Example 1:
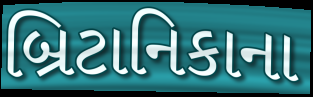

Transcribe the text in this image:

બ્રિટાનિકાના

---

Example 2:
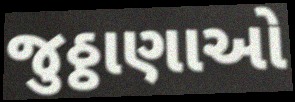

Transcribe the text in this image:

જુઠ્ઠાણાઓ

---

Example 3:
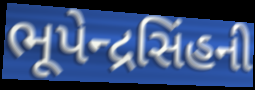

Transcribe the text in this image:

ભૂપેન્દ્રસિંહની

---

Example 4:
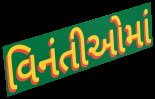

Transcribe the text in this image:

વિનંતીઓમાં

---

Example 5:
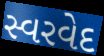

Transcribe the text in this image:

સ્વરવેદ